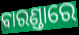
ବାରଣ୍ଡାରେ